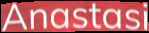
Anastasi